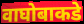
वाघोबाकडे